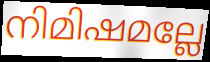
നിമിഷമല്ലേ